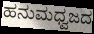
ಹನುಮಧ್ವಜದ